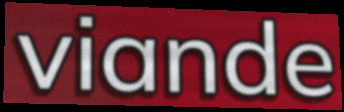
viande